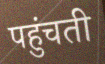
पहुंचती